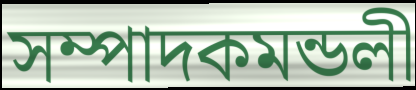
সম্পাদকমন্ডলী